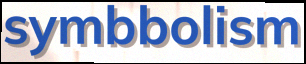
symbbolism